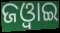
ଜଓ୍ବାଇ